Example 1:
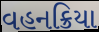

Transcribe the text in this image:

વહનક્રિયા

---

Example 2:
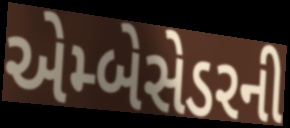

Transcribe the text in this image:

એમ્બેસેડરની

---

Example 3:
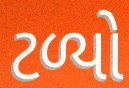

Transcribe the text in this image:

ટળ્યો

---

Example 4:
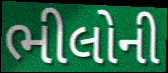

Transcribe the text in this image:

ભીલોની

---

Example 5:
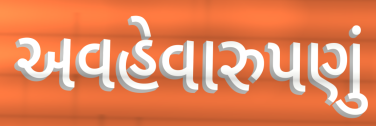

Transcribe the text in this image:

અવહેવારુપણું